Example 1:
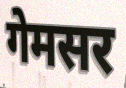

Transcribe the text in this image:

गेमसर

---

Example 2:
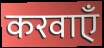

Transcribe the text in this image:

करवाएँ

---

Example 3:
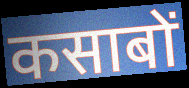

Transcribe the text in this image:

कसाबों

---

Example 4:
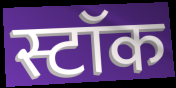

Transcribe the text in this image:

स्‍टॉक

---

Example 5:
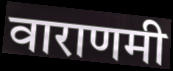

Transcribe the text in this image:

वाराणमी